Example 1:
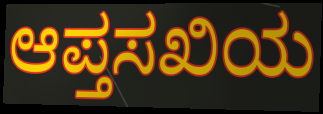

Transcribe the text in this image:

ಆಪ್ತಸಖಿಯ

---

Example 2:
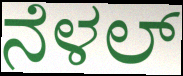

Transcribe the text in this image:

ನೆಳಲ್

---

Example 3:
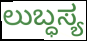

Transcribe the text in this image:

ಲುಬ್ಧಸ್ಯ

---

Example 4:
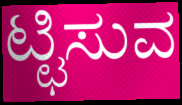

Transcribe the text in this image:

ಟ್ಟಿಸುವ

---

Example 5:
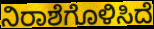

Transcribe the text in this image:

ನಿರಾಶೆಗೊಳಿಸಿದೆ